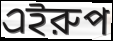
এইরুপ